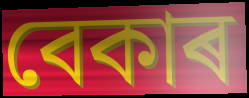
বেকাৰ